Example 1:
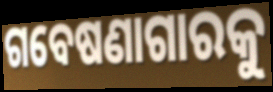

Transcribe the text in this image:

ଗବେଷଣାଗାରକୁ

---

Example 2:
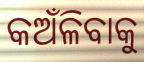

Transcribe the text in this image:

କଅଁଳିବାକୁ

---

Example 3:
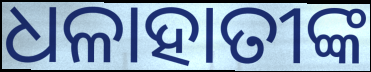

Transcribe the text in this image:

ଧଳାହାତୀଙ୍କ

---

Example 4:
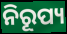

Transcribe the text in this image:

ନିରୂପ୍ୟ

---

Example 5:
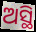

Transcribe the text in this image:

ଅସ୍ଥି